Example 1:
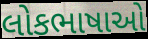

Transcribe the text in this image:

લોકભાષાઓ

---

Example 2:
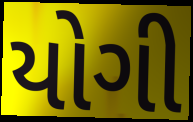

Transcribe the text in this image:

યોગી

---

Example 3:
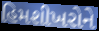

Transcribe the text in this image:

હિમશીખરોને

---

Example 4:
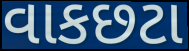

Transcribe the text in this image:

વાકછટા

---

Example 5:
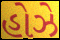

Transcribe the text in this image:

હોઝે